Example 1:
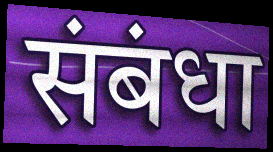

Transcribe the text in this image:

संबंधा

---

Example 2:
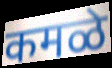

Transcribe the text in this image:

कमळे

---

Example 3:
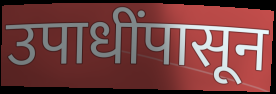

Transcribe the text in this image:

उपाधींपासून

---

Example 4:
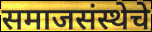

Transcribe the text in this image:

समाजसंस्थेचे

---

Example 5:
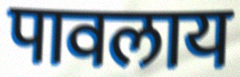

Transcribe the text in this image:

पावलाय